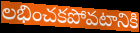
లభించకపోవటానికి